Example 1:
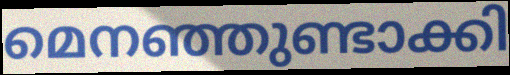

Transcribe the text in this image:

മെനഞ്ഞുണ്ടാക്കി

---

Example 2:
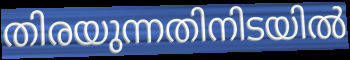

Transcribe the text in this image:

തിരയുന്നതിനിടയിൽ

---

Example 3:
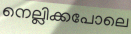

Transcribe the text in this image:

നെല്ലിക്കപോലെ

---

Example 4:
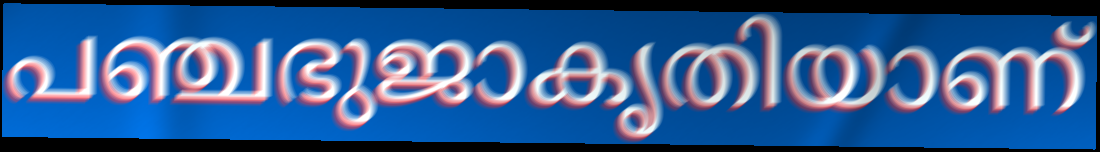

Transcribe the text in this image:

പഞ്ചഭുജാകൃതിയാണ്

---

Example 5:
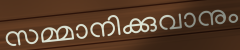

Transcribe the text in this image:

സമ്മാനിക്കുവാനും